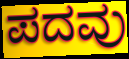
ಪದವು